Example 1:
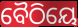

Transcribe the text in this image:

ବୈଠିୟେ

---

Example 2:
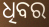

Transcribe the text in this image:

ଧିବର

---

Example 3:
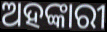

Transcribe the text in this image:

ଅହଙ୍କାରୀ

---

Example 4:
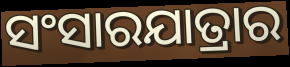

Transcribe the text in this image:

ସଂସାରଯାତ୍ରାର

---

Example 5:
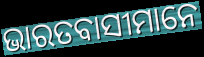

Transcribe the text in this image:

ଭାରତବାସୀମାନେ